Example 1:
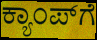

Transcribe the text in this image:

ಕ್ಯಾಂಪ್‍ಗೆ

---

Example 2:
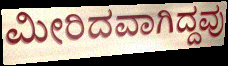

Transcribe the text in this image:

ಮೀರಿದವಾಗಿದ್ದವು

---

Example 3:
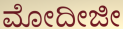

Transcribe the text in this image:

ಮೋದೀಜೀ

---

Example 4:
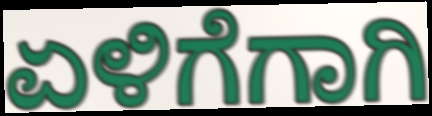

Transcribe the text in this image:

ಏಳಿಗೆಗಾಗಿ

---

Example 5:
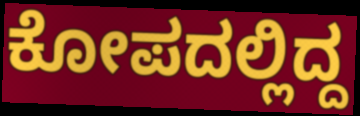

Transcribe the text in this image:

ಕೋಪದಲ್ಲಿದ್ದ